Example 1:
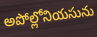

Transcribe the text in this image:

అపోల్లోనియసును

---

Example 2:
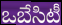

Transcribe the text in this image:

ఒబేసిటీ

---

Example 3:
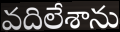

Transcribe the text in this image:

వదిలేశాను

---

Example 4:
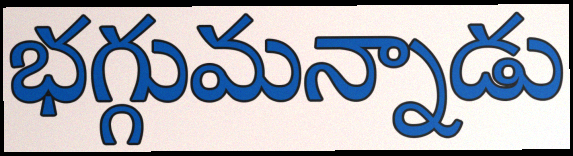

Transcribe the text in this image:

భగ్గుమన్నాడు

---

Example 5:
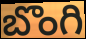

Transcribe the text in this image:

బొంగి